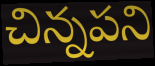
చిన్నపని